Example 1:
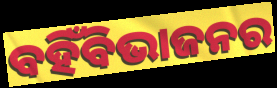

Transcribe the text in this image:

ବହିଁବିଭାଜନର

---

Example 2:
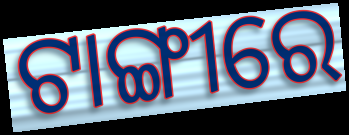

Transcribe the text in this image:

ଟାଙ୍ଗୀରେ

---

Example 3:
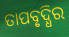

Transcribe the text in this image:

ତାପବୃଦ୍ଧିର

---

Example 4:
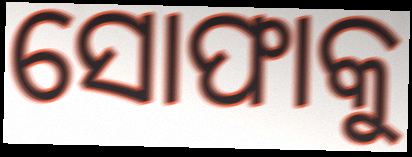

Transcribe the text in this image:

ସୋଫାକୁ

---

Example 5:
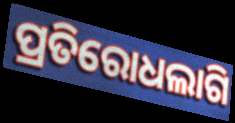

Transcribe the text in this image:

ପ୍ରତିରୋଧଲାଗି